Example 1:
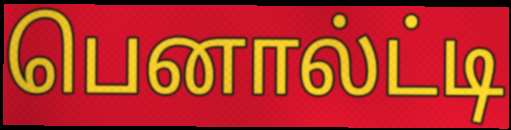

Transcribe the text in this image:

பெனால்ட்டி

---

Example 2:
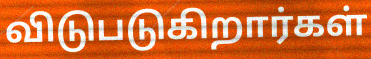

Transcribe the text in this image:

விடுபடுகிறார்கள்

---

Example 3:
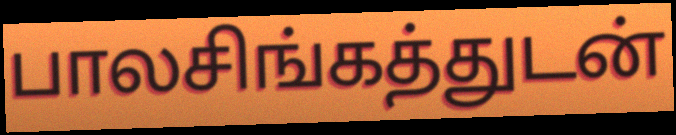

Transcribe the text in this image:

பாலசிங்கத்துடன்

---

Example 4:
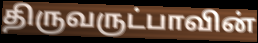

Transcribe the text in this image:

திருவருட்பாவின்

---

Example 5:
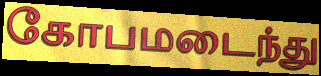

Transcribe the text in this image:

கோபமடைந்து